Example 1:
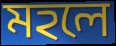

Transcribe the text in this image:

মহলে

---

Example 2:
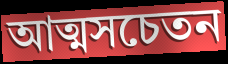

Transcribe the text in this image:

আত্মসচেতন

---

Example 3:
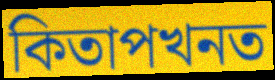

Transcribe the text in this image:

কিতাপখনত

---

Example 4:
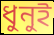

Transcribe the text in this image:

ধুনুই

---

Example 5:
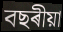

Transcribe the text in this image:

বছৰীয়া